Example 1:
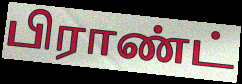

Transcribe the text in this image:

பிராண்ட்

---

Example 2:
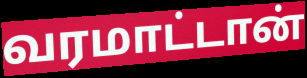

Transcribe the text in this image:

வரமாட்டான்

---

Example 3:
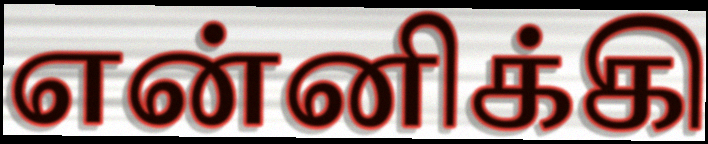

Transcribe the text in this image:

என்னிக்கி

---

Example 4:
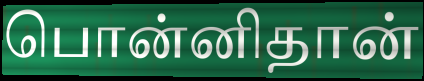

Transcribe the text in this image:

பொன்னிதான்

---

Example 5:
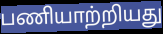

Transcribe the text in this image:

பணியாற்றியது